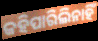
କହିପାରିଲିନାହିଁ